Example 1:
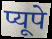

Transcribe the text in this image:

प्यूपे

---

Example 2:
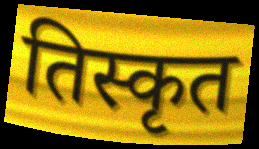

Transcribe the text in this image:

तिस्कृत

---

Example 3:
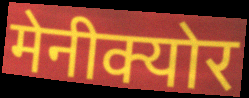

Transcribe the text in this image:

मेनीक्योर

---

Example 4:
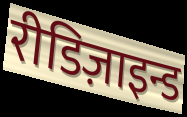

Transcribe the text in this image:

रीडिज़ाइन्ड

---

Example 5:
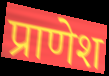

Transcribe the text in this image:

प्राणेश